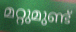
മറ്റുമുണ്ട്